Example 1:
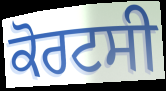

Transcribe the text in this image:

ਕੋਰਟਸੀ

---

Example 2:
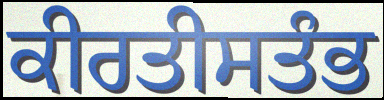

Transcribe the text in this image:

ਕੀਰਤੀਸਤੰਭ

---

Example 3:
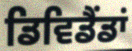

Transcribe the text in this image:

ਡਿਵਿਡੈਂਡਾਂ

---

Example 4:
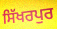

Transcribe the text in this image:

ਸਿੱਖਰਪੁਰ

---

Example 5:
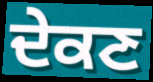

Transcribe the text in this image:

ਦੇਕਣ